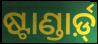
ଷ୍ଟାଣ୍ଡାର୍ଡ଼୍